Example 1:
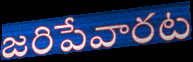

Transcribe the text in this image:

జరిపేవారట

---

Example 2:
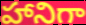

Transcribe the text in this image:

హానిగా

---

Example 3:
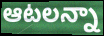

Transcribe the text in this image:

ఆటలన్నా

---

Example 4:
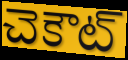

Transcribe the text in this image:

చెకౌట్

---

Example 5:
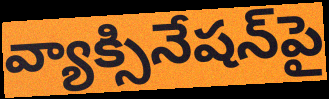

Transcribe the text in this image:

వ్యాక్సినేషన్‌పై